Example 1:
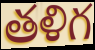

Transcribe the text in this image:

తళిగ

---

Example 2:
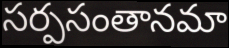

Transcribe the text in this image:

సర్పసంతానమా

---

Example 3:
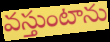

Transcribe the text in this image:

వస్తుంటాను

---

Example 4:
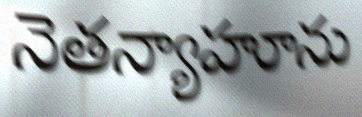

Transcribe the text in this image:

నెతన్యాహూను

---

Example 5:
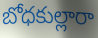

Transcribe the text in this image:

బోధకుల్లారా